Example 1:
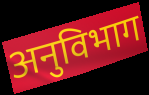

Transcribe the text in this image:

अनुविभाग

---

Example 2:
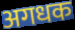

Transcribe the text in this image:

अगधक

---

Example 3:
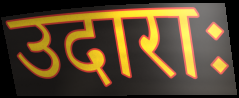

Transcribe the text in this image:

उदाराः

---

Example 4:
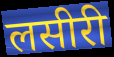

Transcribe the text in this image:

लसीरी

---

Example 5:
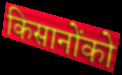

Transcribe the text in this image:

किसानोंको